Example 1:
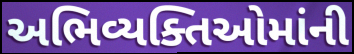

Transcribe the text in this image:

અભિવ્યક્તિઓમાંની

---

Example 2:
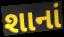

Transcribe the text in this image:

શાનાં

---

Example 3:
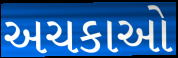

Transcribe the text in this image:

અચકાઓ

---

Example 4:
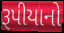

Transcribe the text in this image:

રૂપીયાનો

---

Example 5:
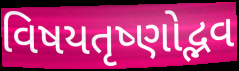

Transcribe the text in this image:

વિષયતૃષ્ણોદ્ભવ